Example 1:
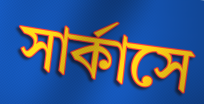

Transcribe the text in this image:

সার্কাসে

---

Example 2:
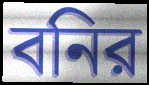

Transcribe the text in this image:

বনির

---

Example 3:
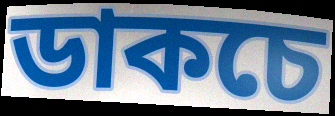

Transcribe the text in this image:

ডাকচে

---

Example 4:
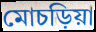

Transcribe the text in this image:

মোচড়িয়া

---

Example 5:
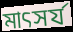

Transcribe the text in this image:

মাৎসর্য